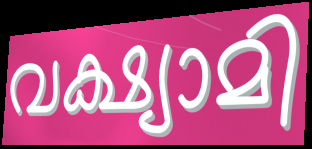
വക്ഷ്യാമി